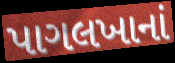
પાગલખાનાં